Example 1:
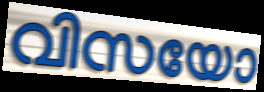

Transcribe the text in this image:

വിസയോ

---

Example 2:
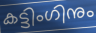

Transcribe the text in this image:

കട്ടിംഗിനും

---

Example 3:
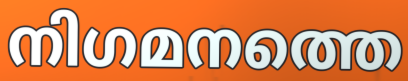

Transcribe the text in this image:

നിഗമനത്തെ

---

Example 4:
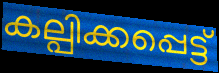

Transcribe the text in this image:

കല്പിക്കപ്പെട്ട്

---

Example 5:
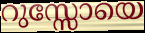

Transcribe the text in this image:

റുസ്സോയെ